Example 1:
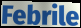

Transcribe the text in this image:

Febrile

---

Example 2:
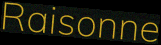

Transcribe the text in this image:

Raisonne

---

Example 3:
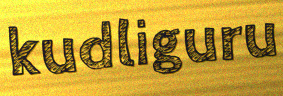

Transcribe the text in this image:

kudliguru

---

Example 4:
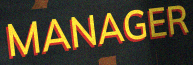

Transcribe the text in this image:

MANAGER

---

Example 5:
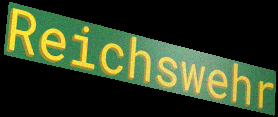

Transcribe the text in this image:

Reichswehr